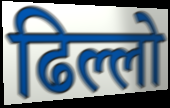
ढिल्लो